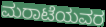
ಮರಾಟೆಯವರ